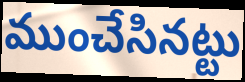
ముంచేసినట్టు